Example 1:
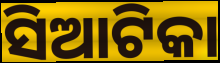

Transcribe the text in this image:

ସିଆଟିକା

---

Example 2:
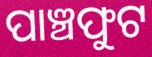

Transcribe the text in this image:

ପାଞ୍ଚଫୁଟ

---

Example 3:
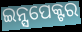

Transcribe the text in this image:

ଇନ୍ସପେକ୍ଟର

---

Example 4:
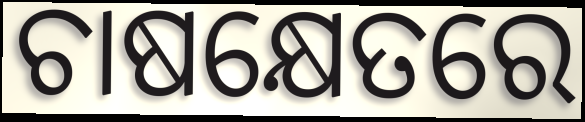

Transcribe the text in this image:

ଚାଷକ୍ଷେତରେ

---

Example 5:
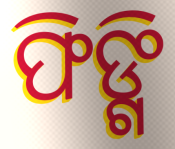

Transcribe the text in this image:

ଫିଙ୍ଗି